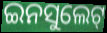
ଇନସୁଲେଟ୍